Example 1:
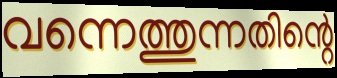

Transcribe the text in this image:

വന്നെത്തുന്നതിന്റെ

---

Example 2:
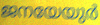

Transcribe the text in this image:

ജനയേയുർ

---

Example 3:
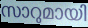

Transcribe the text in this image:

സാറുമായി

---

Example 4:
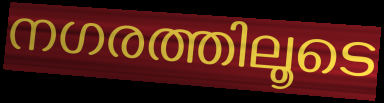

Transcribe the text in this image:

നഗരത്തിലൂടെ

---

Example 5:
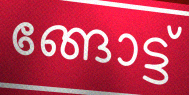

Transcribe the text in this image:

ങ്ങോട്ട്